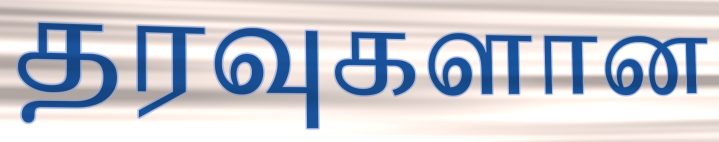
தரவுகளான